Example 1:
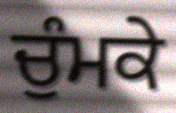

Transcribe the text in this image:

ਚੁੰਮਕੇ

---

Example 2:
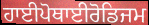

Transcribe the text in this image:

ਹਾਈਪੋਥਾਈਰੋਡਿਜਮ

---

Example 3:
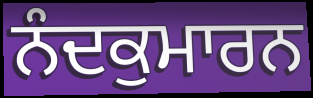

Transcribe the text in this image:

ਨੰਦਕੁਮਾਰਨ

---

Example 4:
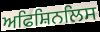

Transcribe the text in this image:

ਅਫਿਸ਼ਿਨਲਿਸ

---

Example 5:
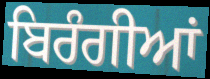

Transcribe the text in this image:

ਬਿਰੰਗੀਆਂ